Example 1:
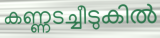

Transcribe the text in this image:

കണ്ണടച്ചീടുകിൽ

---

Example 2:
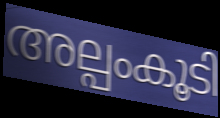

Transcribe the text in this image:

അല്പംകൂടി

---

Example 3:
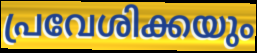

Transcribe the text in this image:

പ്രവേശിക്കയും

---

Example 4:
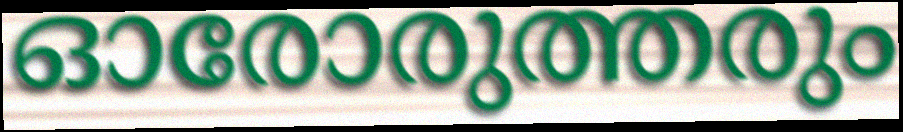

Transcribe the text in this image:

ഓരോരുത്തരും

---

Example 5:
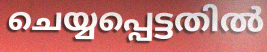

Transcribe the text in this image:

ചെയ്യപ്പെട്ടതിൽ